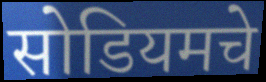
सोडियमचे